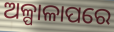
ଅଳ୍ପାଳାପରେ